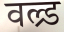
वल्र्ड